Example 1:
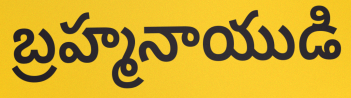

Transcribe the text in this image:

బ్రహ్మనాయుడి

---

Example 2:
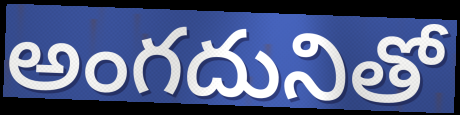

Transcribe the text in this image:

అంగదునితో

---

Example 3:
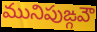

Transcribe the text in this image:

మునిపుఙ్గవౌ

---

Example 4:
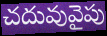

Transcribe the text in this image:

చదువువైపు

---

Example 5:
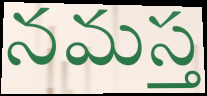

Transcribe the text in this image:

నమస్త